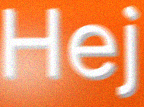
Hej